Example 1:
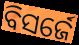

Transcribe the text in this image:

ବିସର୍ଜେ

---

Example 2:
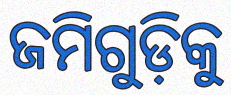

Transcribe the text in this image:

ଜମିଗୁଡ଼ିକୁ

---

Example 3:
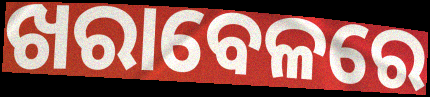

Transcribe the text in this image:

ଖରାବେଳରେ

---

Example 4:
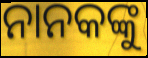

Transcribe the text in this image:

ନାନକଙ୍କୁ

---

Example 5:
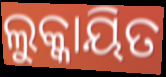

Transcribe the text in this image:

ଲୁକ୍କାୟିତ